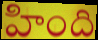
హింది